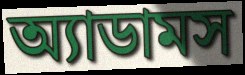
অ্যাডামস